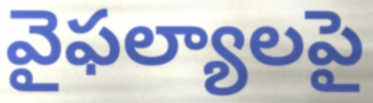
వైఫల్యాలపై